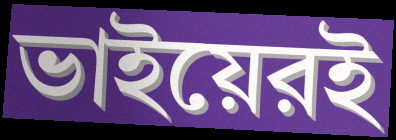
ভাইয়েরই